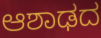
ಆಶಾಢದ